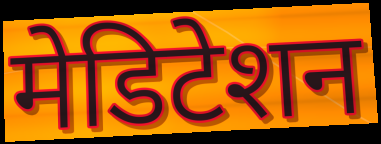
मेडिटेशन